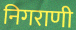
निगराणी